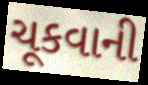
ચૂકવાની